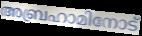
അബ്രഹാമിനോട്